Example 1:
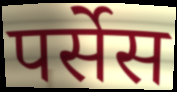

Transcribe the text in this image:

पर्सेस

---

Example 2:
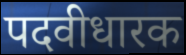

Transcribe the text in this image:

पदवीधारक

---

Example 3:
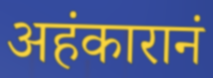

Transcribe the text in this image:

अहंकारानं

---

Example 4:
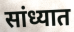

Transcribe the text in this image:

सांध्यात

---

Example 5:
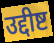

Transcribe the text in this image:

उद्दीष्ट